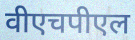
वीएचपीएल